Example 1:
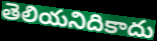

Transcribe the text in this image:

తెలియనిదికాదు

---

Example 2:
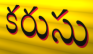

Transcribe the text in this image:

కరుసు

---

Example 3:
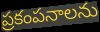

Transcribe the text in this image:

ప్రకంపనాలను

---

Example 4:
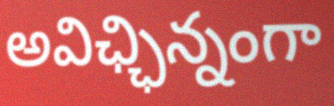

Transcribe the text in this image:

అవిఛ్ఛిన్నంగా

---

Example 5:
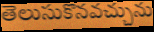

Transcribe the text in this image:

తెలుసుకొనవచ్చును